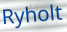
Ryholt